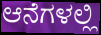
ಆನೆಗಳಲ್ಲಿ